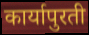
कार्यापुरती